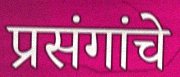
प्रसंगांचे